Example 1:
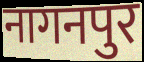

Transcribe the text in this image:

नागनपुर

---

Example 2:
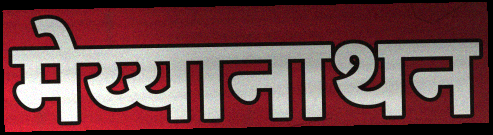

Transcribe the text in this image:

मेय्यानाथन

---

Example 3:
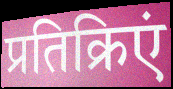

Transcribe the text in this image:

प्रतिक्रिएं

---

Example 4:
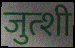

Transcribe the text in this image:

जुत्शी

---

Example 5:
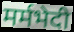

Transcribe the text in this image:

मर्मभेदी